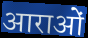
आराओं